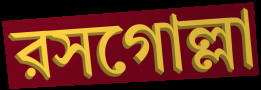
রসগোল্লা